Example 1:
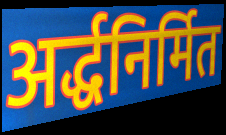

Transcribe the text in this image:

अर्द्धनिर्मित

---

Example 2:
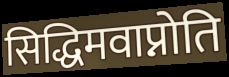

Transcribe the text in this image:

सिद्धिमवाप्नोति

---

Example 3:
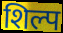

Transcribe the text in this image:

शिल्प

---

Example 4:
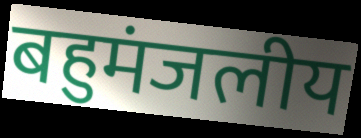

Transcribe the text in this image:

बहुमंजलीय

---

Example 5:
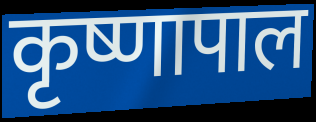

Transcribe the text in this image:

कृष्णापाल